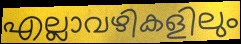
എല്ലാവഴികളിലും